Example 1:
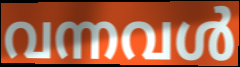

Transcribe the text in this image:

വന്നവൾ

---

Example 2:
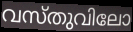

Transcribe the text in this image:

വസ്തുവിലോ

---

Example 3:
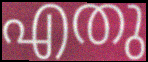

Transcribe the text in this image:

എതു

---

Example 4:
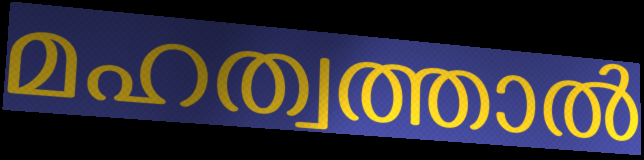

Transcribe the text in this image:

മഹത്വത്താൽ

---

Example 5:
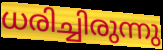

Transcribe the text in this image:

ധരിച്ചിരുന്നു